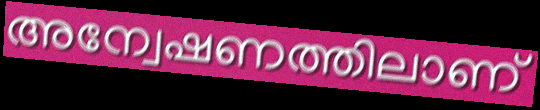
അന്വേഷണത്തിലാണ്